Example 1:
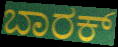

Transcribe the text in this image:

ಬಾರಕ್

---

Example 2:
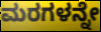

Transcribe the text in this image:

ಮರಗಳನ್ನೇ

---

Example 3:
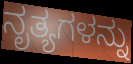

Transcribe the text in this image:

ನೃತ್ಯಗಳನ್ನು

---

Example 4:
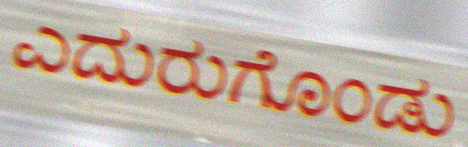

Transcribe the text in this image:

ಎದುರುಗೊಂಡು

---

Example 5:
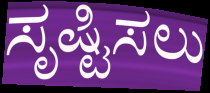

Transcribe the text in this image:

ಸೃಷ್ಟಿಸಲು